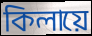
কিলায়ে